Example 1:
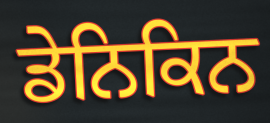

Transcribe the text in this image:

ਡੇਨਿਕਿਨ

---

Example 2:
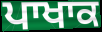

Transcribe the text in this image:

ਪਾਖਾਕ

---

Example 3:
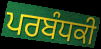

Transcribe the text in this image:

ਪਰਬੰਧਕੀ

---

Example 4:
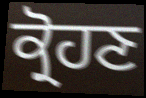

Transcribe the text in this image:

ਕ੍ਰੋਹਣ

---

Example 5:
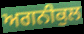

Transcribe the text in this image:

ਅਗਨੀਕੁਲ